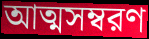
আত্মসম্বরণ